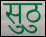
सुठु